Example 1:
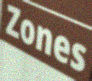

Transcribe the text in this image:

Zones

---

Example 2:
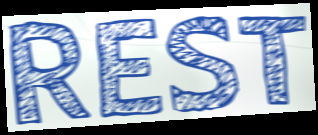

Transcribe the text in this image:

REST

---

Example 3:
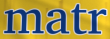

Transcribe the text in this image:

matr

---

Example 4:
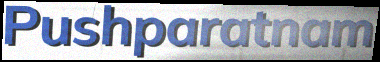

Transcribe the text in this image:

Pushparatnam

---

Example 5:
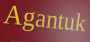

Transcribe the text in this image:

Agantuk